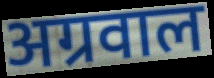
अग्रवाल